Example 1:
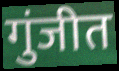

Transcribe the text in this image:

गुंजीत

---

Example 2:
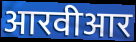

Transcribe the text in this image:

आरवीआर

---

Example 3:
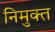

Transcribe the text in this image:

निमुक्त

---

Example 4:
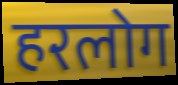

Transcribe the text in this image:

हरलोग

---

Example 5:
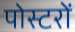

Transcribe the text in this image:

पोस्‍टरों